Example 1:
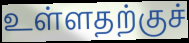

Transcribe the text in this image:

உள்ளதற்குச்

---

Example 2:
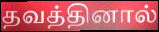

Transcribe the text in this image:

தவத்தினால்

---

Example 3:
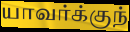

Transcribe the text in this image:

யாவர்க்குந்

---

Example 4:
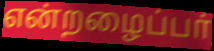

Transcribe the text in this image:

என்றழைப்பர்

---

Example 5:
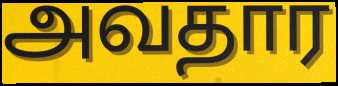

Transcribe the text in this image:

அவதார